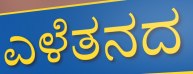
ಎಳೆತನದ